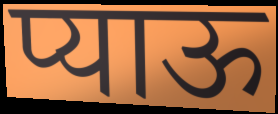
प्याऊ